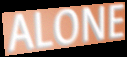
ALONE